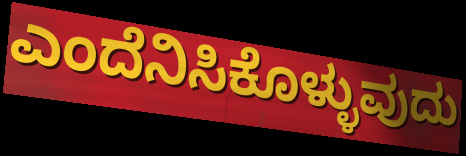
ಎಂದೆನಿಸಿಕೊಳ್ಳುವುದು